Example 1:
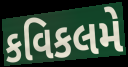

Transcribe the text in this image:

કવિકલમે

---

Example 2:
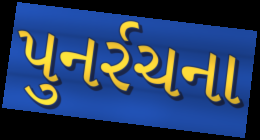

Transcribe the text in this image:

પુનર્રચના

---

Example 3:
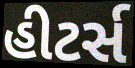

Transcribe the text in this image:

હીટર્સ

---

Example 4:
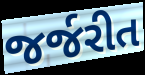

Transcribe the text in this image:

જર્જરીત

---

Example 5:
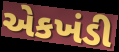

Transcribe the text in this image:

એકખંડી